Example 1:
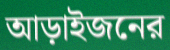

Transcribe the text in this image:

আড়াইজনের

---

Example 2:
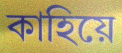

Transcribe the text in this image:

কাহিয়ে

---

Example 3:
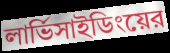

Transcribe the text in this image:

লার্ভিসাইডিংয়ের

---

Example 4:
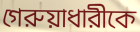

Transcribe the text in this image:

গেরুয়াধারীকে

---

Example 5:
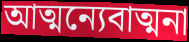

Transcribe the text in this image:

আত্মন্যেবাত্মনা